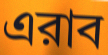
এরাব